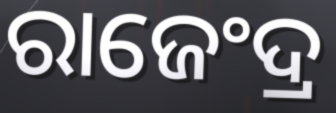
ରାଜେଂଦ୍ର